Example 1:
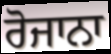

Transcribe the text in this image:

ਰੋਜਾਨਾ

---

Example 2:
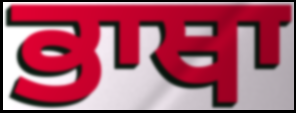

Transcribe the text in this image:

ਭਾਥਾ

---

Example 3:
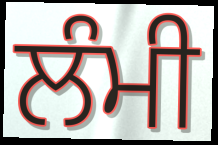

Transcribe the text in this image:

ਲੰਮੀ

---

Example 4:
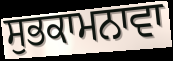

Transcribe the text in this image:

ਸੁਭਕਾਮਨਾਵਾ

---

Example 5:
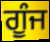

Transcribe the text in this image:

ਗੂੰਜ